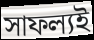
সাফল্যই